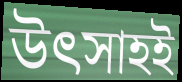
উৎসাহই